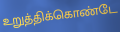
உறுத்திக்கொண்டே